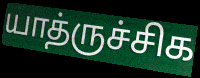
யாத்ருச்சிக